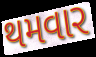
થમવાર